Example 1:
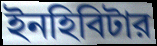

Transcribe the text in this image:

ইনহিবিটার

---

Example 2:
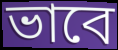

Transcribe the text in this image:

ভাবে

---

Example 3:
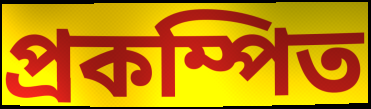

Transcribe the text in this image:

প্রকম্পিত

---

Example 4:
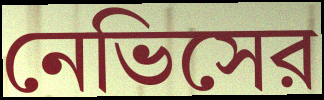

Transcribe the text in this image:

নেভিসের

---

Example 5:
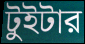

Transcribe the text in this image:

টুইটার